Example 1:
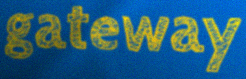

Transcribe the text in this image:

gateway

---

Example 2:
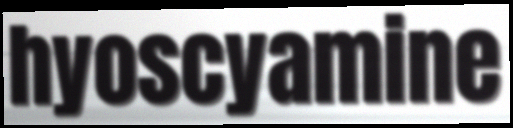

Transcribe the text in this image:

hyoscyamine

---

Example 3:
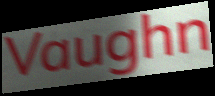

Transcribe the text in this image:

Vaughn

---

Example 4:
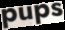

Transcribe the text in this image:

pups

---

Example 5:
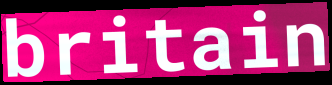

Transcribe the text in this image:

britain